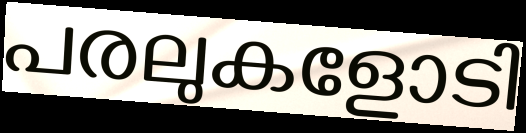
പരലുകളോടി